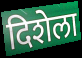
दिशेला